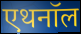
एथनॉल